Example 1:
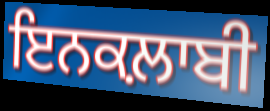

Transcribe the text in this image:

ਇਨਕ਼ਲਾਬੀ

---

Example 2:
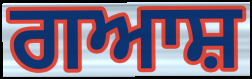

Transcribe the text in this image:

ਗਆਸ਼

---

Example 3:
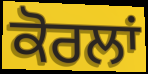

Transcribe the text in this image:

ਕੋਰਲਾਂ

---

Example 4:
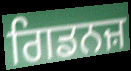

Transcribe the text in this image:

ਗਿਡਨਜ਼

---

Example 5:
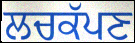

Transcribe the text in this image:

ਲਚਕੱਪਣ